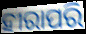
ହୀରାପରି